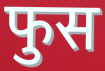
फुस